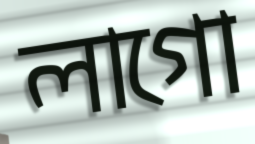
লাগো